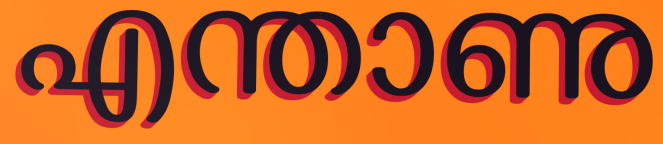
എന്താണു